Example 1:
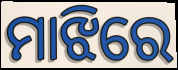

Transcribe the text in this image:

ମାଝିରେ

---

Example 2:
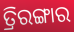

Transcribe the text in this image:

ତ୍ରିରଙ୍ଗାର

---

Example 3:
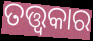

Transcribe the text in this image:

ତତ୍ତ୍ୱକାର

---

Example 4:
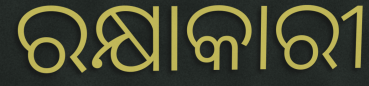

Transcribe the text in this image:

ରକ୍ଷାକାରୀ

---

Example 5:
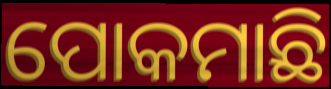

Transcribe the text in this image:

ପୋକମାଛି